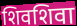
शिवशिवा